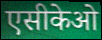
एसीकेओ